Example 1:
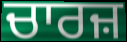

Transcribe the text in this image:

ਚਾਰਜ਼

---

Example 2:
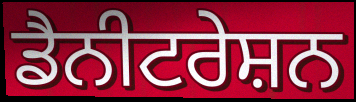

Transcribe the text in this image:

ਡੈਨੀਟਰੇਸ਼ਨ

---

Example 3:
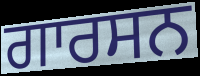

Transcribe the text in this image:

ਗਾਰਸਨ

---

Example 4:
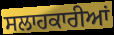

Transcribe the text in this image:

ਸਲਾਹਕਾਰੀਆਂ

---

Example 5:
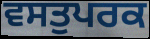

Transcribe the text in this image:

ਵਸਤੁਪਰਕ